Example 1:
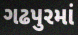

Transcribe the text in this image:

ગઢપુરમાં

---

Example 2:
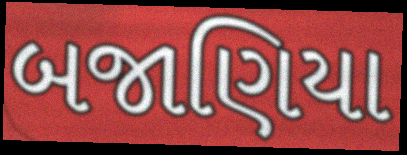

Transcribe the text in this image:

બજાણિયા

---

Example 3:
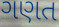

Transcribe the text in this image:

ગણત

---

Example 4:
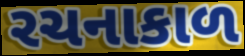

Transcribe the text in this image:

રચનાકાળ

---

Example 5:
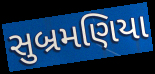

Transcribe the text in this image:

સુબ્રમણિયા